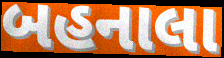
બહનાલા